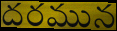
దరమున